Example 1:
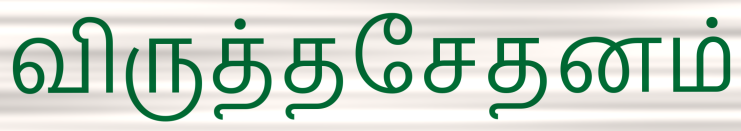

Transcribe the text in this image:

விருத்தசேதனம்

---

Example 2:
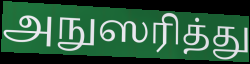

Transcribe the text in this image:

அநுஸரித்து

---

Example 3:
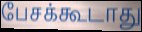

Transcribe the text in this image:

பேசக்கூடாது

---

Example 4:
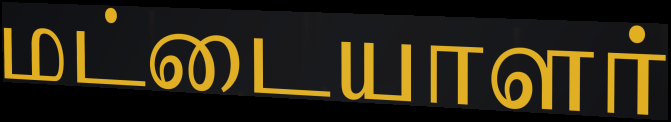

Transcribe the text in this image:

மட்டையாளர்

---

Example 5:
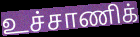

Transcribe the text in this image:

உச்சாணிக்